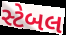
સ્ટેબલ